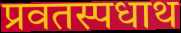
प्रवतस्पधाथ